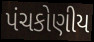
પંચકોણીય